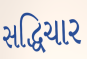
સદ્ધિચાર